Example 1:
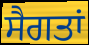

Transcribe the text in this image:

ਸੈਗਤਾਂ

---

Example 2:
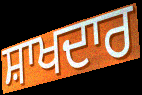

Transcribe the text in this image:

ਸ਼ਾਖਦਾਰ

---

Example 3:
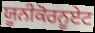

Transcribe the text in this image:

ਯੂਨੀਕੋਰਨੂਏਟ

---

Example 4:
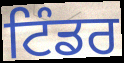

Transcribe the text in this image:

ਟਿੰਡਰ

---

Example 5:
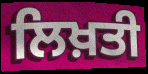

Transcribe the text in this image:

ਲਿਖ਼ਤੀ